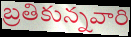
బ్రతికున్నవారి